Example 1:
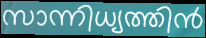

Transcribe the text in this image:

സാന്നിധ്യത്തിൻ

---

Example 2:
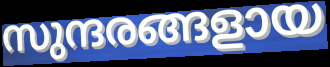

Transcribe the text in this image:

സുന്ദരങ്ങളായ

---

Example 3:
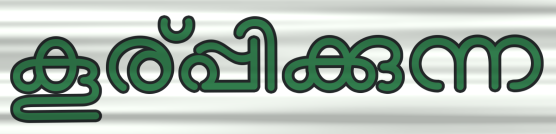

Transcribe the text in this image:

കൂര്പ്പിക്കുന്ന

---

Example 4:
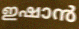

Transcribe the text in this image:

ഇഷാൻ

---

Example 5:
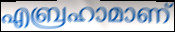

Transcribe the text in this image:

എബ്രഹാമാണ്